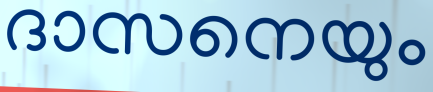
ദാസനെയും